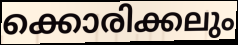
ക്കൊരിക്കലും